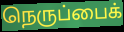
நெருப்பைக்